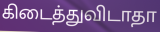
கிடைத்துவிடாதா